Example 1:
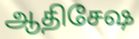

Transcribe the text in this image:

ஆதிசேஷ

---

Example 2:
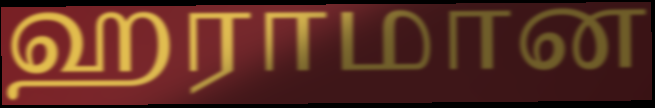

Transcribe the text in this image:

ஹராமான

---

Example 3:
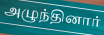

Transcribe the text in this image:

அழுந்தினார்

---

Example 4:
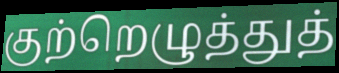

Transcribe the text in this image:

குற்றெழுத்துத்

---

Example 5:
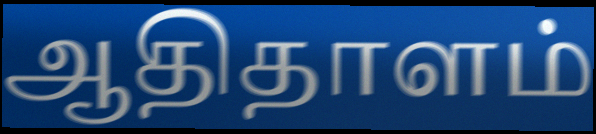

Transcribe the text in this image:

ஆதிதாளம்